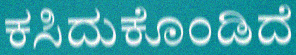
ಕಸಿದುಕೊಂಡಿದೆ